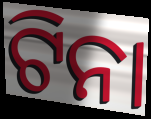
ଟିନା